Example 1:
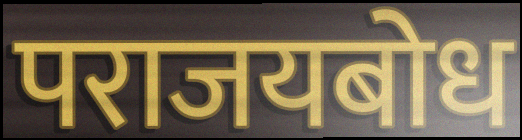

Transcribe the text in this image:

पराजयबोध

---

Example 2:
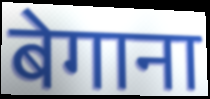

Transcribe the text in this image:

बेगाना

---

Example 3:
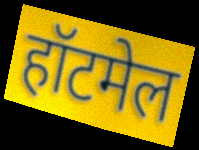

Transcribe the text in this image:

हॉटमेल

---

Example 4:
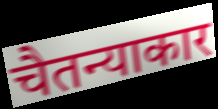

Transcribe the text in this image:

चैतन्याकार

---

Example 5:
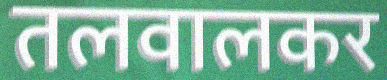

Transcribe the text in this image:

तलवालकर